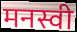
मनस्वी